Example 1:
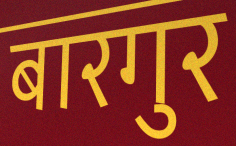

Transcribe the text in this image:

बारगुर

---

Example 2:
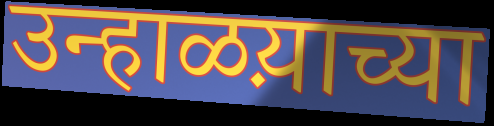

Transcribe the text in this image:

उन्हाळय़ाच्या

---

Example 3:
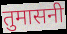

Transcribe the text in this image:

तुमासनी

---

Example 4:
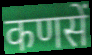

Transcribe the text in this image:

कणसें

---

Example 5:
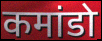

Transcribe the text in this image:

कमांडो